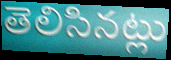
తెలిసినట్లు